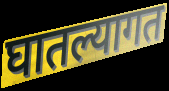
घातल्यागत